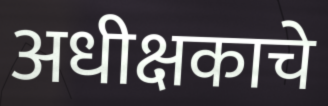
अधीक्षकाचे